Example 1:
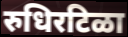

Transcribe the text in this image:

रुधिरटिळा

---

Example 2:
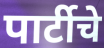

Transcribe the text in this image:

पार्टीचे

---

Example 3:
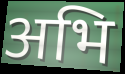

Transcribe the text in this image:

अभि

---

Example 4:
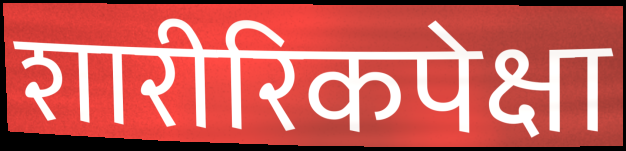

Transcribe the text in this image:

शारीरिकपेक्षा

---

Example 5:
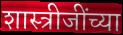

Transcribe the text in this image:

शास्त्रीजींच्या